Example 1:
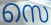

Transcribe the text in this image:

സെ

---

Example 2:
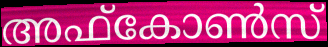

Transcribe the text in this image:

അഫ്കോൺസ്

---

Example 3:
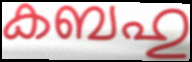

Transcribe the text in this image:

കബഹു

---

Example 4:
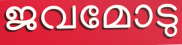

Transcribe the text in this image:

ജവമോടു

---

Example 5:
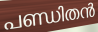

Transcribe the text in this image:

പണ്ഡിതൻ